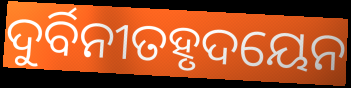
ଦୁର୍ବିନୀତହୃଦୟେନ